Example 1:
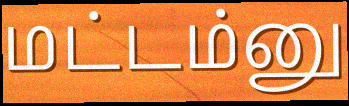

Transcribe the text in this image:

மட்டம்னு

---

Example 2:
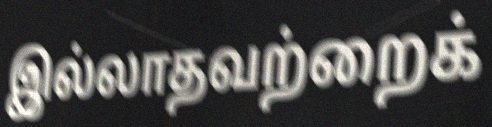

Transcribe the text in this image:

இல்லாதவற்றைக்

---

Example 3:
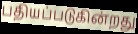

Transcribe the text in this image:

பதியப்படுகின்றது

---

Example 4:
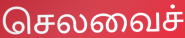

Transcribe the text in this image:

செலவைச்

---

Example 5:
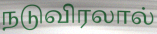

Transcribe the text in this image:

நடுவிரலால்